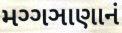
મગ્ગઞાણાનં